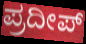
ಪ್ರದೀಪ್